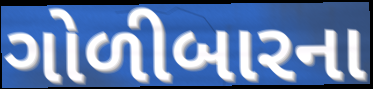
ગોળીબારના